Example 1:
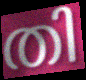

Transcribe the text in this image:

തി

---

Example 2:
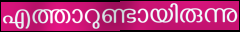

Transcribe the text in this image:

എത്താറുണ്ടായിരുന്നു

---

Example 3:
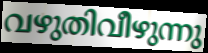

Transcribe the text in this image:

വഴുതിവീഴുന്നു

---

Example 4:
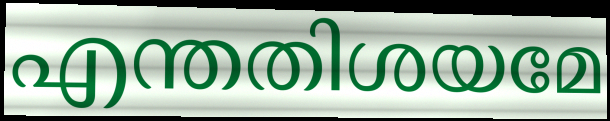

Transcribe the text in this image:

എന്തതിശയമേ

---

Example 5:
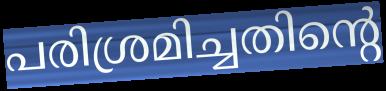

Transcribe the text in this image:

പരിശ്രമിച്ചതിന്റെ